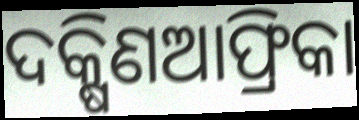
ଦକ୍ଷିଣଆଫ୍ରିକା